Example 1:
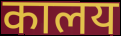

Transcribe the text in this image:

कालय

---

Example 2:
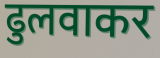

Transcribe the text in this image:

ढुलवाकर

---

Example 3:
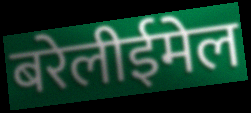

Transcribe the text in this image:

बरेलीईमेल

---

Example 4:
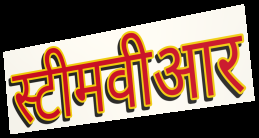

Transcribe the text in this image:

स्टीमवीआर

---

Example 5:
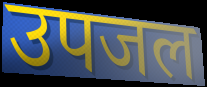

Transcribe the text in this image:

उपजल